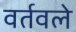
वर्तवले